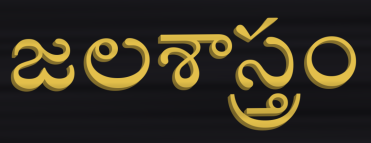
జలశాస్త్రం